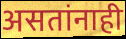
असतांनाही